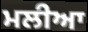
ਮਲੀਆ